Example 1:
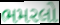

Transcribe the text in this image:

ભમરલો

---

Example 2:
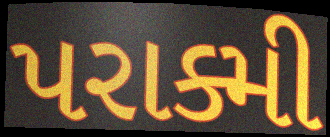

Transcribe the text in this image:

પરાક્મી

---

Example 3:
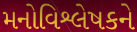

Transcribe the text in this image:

મનોવિશ્લેષકને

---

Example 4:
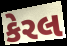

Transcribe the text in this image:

કેરલ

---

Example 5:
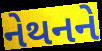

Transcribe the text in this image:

નેથનને